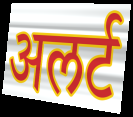
अलर्ट